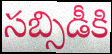
సబ్సిడీకి